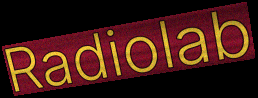
Radiolab